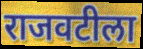
राजवटीला